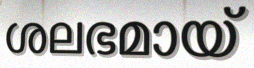
ശലഭമായ്